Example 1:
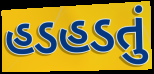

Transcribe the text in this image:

હડહડતું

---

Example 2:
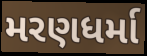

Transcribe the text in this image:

મરણધર્મા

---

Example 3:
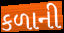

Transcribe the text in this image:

કળાની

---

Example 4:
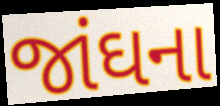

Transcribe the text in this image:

જાંઘના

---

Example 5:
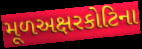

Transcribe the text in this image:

મૂળઅક્ષરકોટિના